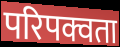
परिपक्‍वता